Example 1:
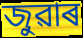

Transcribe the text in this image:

জুৱাৰ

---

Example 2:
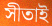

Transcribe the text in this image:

সীতাই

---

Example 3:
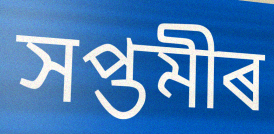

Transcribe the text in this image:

সপ্তমীৰ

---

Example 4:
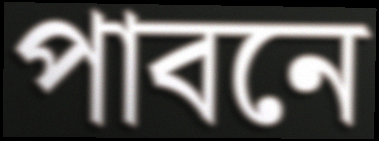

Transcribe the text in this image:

পাবনে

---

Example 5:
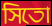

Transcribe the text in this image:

সিতো